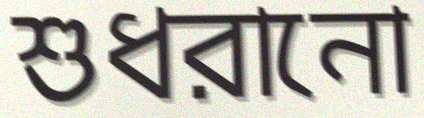
শুধরানো